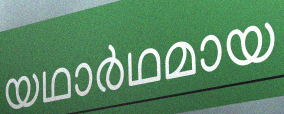
യഥാർഥമായ